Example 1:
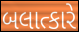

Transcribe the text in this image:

બલાત્કારે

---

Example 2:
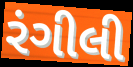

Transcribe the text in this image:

રંગીલી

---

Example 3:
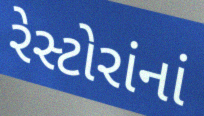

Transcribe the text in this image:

રેસ્ટોરાંનાં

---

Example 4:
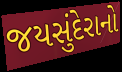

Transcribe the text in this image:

જયસુંદેરાનો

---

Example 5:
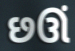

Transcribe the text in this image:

છઊં